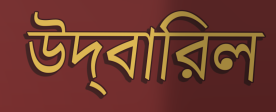
উদ্‌বারিল